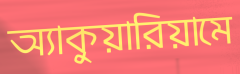
অ্যাকুয়ারিয়ামে